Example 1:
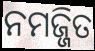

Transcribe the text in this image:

ନମଜ୍ଜିତ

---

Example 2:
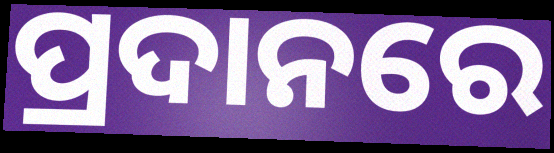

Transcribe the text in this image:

ପ୍ରଦାନରେ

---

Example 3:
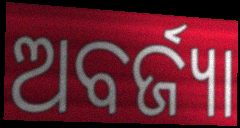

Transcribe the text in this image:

ଅବର୍ଜ୍ୟା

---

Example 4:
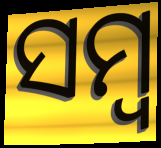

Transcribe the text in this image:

ସମ୍ବ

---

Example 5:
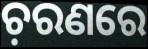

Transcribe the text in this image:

ଚ଼ରଣରେ